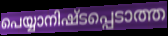
പെയ്യാനിഷ്ടപ്പെടാത്ത